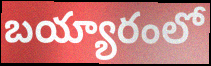
బయ్యారంలో